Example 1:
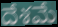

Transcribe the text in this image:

దేశమే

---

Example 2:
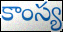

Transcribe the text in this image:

కాంస్య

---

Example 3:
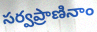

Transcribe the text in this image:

సర్వప్రాణినాం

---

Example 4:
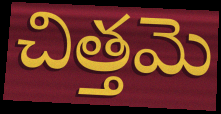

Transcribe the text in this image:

చిత్తమె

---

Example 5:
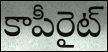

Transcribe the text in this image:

కాపీరైట్